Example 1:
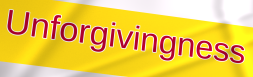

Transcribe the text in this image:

Unforgivingness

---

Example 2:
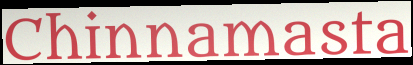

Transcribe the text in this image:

Chinnamasta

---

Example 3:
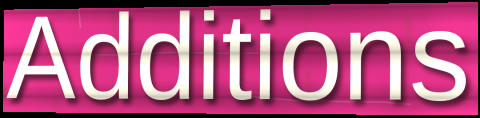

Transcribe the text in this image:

Additions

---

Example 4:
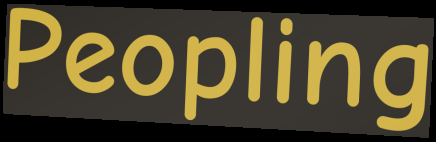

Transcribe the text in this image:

Peopling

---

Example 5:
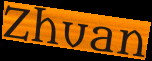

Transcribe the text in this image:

Zhuan